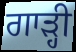
ਗਾੜ੍ਹੀ